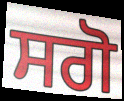
ਸਗੋ